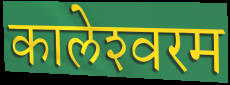
कालेश्वरम